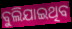
ବୁଲିଯାଇଥିବ